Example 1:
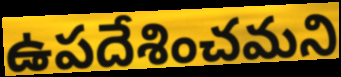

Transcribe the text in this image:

ఉపదేశించమని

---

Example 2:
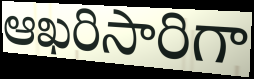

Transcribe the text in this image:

ఆఖరిసారిగా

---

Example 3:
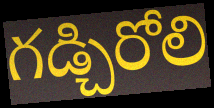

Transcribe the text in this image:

గడ్చిరోలి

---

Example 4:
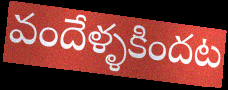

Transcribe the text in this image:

వందేళ్ళకిందట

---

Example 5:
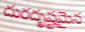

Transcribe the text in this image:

దురదృష్టమైన